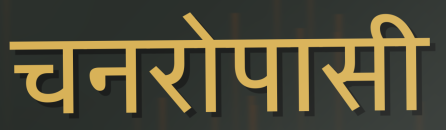
चनरोपासी